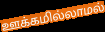
ஊக்கமில்லாமல்